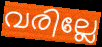
വരില്ലേ